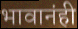
भावानंही